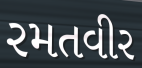
રમતવીર